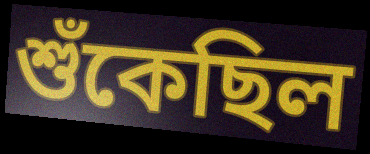
শুঁকেছিল